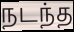
நடந்த